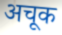
अचूक